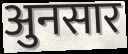
अुनसार